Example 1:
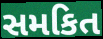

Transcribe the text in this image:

સમકિત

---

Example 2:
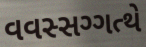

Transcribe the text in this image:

વવસ્સગ્ગત્થે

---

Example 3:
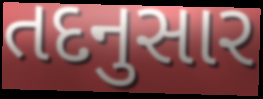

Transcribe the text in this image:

તદનુસાર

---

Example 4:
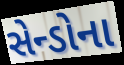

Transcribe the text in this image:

સેન્ડોના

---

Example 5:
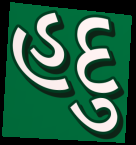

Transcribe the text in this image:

હદુ